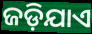
ଜଡ଼ିଯାଏ